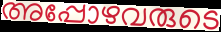
അപ്പോഴവരുടെ